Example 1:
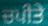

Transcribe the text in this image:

ਚਪੀਤੇ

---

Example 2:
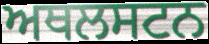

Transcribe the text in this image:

ਅਥਲਸਟਨ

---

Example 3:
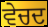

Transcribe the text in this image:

ਵੇਚਦ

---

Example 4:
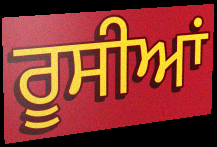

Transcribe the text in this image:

ਰੂਸੀਆਂ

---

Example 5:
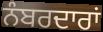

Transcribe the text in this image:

ਨੰਬਰਦਾਰਾਂ